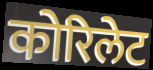
कोरिलेट